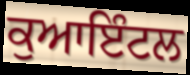
ਕੁਆਇੰਟਲ